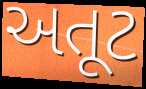
અતૂટ